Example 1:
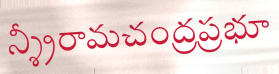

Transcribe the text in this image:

న్శ్రీరామచంద్రప్రభూ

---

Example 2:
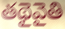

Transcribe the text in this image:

తథైవైతి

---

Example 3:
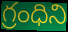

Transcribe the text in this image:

గ్రంధిని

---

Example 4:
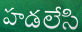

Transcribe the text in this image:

హడలేసి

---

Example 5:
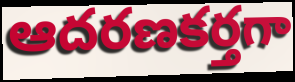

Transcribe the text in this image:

ఆదరణకర్తగా